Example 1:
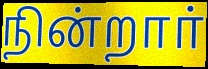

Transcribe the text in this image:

நின்றார்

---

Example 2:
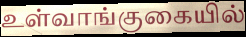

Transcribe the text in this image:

உள்வாங்குகையில்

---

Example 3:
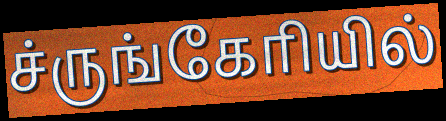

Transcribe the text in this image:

ச்ருங்கேரியில்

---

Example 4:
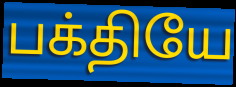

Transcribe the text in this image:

பக்தியே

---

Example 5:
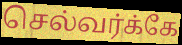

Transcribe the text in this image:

செல்வர்க்கே